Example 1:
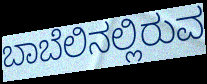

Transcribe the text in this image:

ಬಾಬೆಲಿನಲ್ಲಿರುವ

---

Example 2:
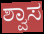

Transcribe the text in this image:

ಶ್ವಾಸ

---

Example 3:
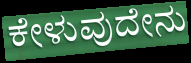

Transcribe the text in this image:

ಕೇಳುವುದೇನು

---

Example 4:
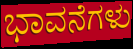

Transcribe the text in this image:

ಭಾವನೆಗಳು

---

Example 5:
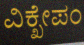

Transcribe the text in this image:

ವಿಕ್ಖೇಪಂ